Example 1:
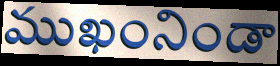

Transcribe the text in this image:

ముఖంనిండా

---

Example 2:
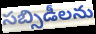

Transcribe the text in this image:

సబ్సిడీలను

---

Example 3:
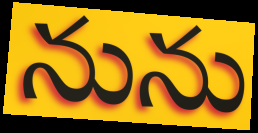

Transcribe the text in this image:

నును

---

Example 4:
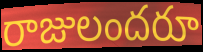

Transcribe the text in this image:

రాజులందరూ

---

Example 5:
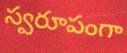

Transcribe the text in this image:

స్వరూపంగా